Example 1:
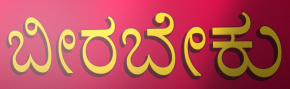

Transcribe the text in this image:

ಬೀರಬೇಕು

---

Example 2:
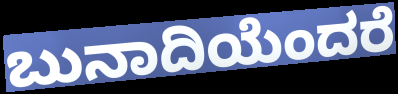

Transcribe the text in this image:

ಬುನಾದಿಯೆಂದರೆ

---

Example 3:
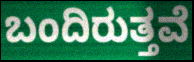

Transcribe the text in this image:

ಬಂದಿರುತ್ತವೆ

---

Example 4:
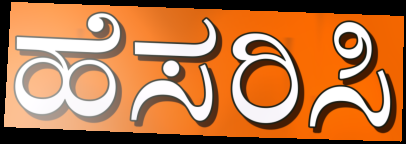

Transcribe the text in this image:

ಹೆಸರಿಸಿ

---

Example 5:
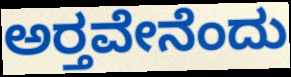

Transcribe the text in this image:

ಅರ‍್ತವೇನೆಂದು